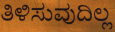
ತಿಳಿಸುವುದಿಲ್ಲ